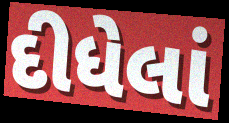
દીધેલાં